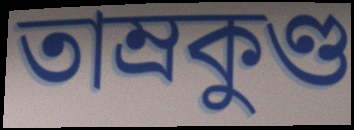
তাম্রকুণ্ড